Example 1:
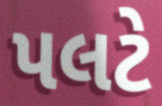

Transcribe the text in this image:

પલટે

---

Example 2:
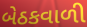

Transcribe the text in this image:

બેઠકવાળી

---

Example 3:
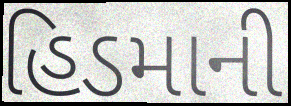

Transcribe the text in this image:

હિડમાની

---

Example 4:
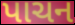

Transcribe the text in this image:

પાચન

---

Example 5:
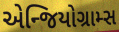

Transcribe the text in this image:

એન્જિયોગ્રામ્સ